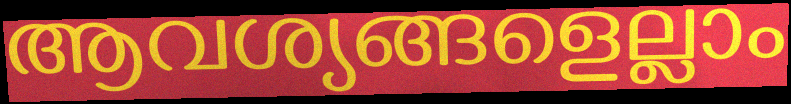
ആവശ്യങ്ങളെല്ലാം